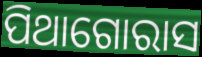
ପିଥାଗୋରାସ